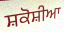
ਸ਼ਕੋਸ਼ੀਆ